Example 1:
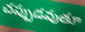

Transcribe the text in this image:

చప్పుడవుతూ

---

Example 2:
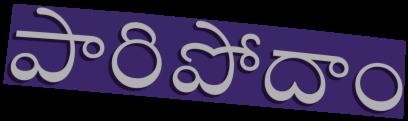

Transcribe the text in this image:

పారిపోదాం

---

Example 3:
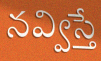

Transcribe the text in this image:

నవ్విస్తే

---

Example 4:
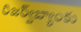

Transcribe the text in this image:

రిజర్వ్‌బ్యాంకు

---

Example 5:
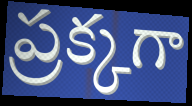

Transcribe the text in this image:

ప్రక్కగా